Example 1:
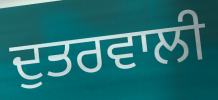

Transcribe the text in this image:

ਦੁਤਰਵਾਲੀ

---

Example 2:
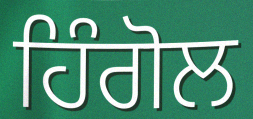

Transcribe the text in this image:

ਹਿੰਗੋਲ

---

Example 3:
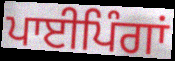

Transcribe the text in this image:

ਪਾਈਪਿੰਗਾਂ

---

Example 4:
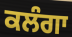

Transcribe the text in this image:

ਕਲੰਗਾ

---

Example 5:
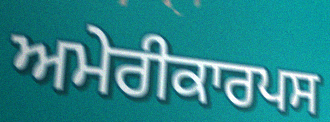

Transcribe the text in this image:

ਅਮੇਰੀਕਾਰਪਸ